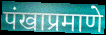
पंखाप्रमाणे